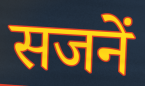
सजनें